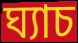
ঘ্যাচ